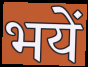
भयें